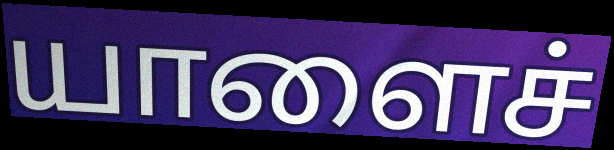
யாளைச்